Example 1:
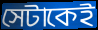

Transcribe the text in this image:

সেটাকেই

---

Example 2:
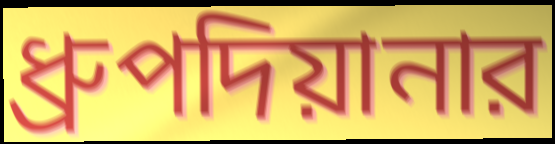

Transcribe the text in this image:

ধ্রুপদিয়ানার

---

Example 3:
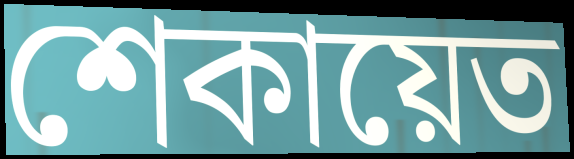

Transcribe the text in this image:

শেকায়েত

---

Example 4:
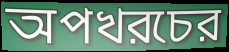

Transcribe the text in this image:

অপখরচের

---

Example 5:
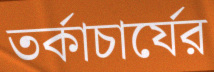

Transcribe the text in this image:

তর্কাচার্যের